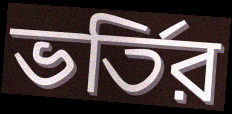
ভর্তির